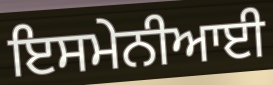
ਇਸਮੇਨੀਆਈ